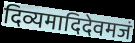
दिव्यमादिदेवमजं